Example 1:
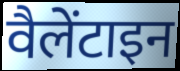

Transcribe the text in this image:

वैलेंटाइन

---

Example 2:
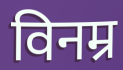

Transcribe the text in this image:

विनम्र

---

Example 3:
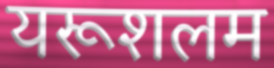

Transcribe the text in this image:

यरूशलम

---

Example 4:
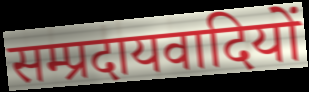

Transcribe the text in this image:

सम्प्रदायवादियों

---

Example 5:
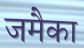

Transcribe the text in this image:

जमैका